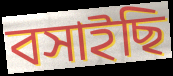
বসাইছি